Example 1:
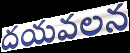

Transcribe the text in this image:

దయవలన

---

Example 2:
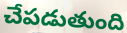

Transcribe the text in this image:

చేపడుతుంది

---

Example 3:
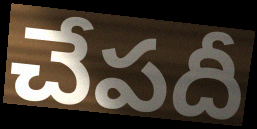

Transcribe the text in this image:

చేపదీ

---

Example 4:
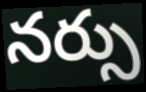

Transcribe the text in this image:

నర్సు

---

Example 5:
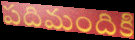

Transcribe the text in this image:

పదిమందికి